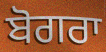
ਬੋਗਰਾ